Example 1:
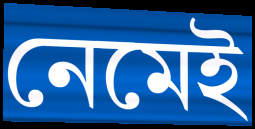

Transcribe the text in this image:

নেমেই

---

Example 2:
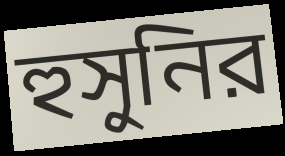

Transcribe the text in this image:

হুসুনির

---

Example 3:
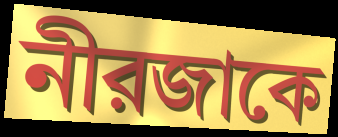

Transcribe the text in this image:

নীরজাকে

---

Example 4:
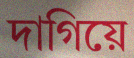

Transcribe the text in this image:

দাগিয়ে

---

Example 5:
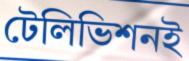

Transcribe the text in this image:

টেলিভিশনই